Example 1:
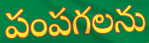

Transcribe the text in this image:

పంపగలను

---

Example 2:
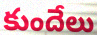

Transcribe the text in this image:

కుందేలు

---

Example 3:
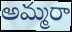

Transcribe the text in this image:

అమ్మరా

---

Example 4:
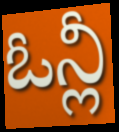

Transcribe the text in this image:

ఓన్లీ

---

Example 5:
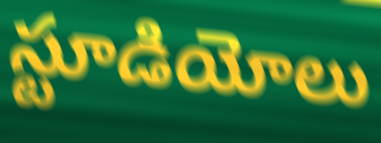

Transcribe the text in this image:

స్టూడియోలు